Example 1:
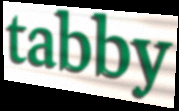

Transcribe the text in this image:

tabby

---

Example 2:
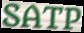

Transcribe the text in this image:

SATP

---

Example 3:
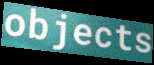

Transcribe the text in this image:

objects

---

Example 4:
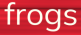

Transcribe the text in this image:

frogs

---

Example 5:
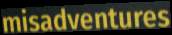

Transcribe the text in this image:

misadventures